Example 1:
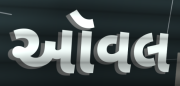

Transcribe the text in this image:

ઑવલ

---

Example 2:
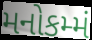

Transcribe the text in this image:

મનોકમ્મં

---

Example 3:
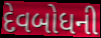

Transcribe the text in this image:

દેવબોધની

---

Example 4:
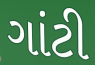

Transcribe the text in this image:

ગાંટી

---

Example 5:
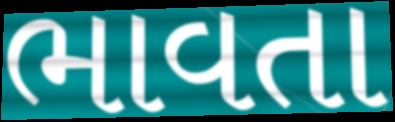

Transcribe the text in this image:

ભાવતા